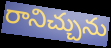
రానిచ్చును